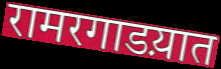
रामरगाडय़ात